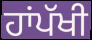
ਹਾਂਪੱਖੀ